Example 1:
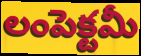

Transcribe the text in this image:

లంపెక్టమీ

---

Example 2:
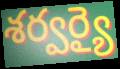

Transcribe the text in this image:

శర్వర్యై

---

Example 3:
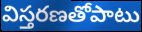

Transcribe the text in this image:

విస్తరణతోపాటు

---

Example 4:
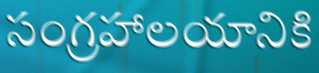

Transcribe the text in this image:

సంగ్రహాలయానికి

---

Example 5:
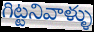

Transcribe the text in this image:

గిట్టనివాళ్ళు